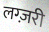
लग्ज़री